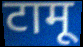
टामू